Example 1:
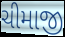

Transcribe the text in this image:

ચીમાજી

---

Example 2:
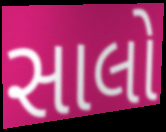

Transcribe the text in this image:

સાલો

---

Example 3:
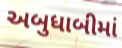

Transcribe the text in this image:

અબુધાબીમાં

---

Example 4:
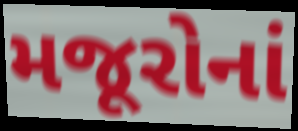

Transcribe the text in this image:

મજૂરોનાં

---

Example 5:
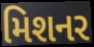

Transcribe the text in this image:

મિશનર